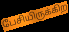
பேசியிருக்கிற